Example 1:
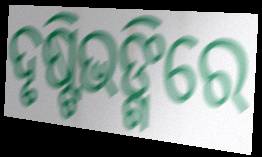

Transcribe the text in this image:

ଦୃଷ୍ଟିଭଙ୍ଗିରେ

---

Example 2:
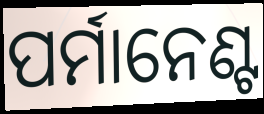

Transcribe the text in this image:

ପର୍ମାନେଣ୍ଟ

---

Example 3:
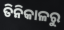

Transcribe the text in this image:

ତିନିକାଳରୁ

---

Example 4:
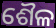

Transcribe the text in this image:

ଶୈଳ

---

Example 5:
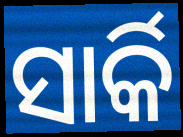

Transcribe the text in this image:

ସାର୍କି